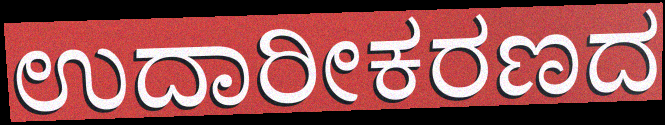
ಉದಾರೀಕರಣದ